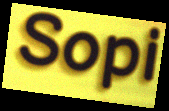
Sopi